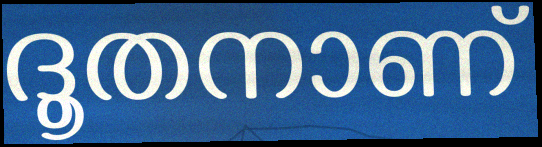
ദൂതനാണ്